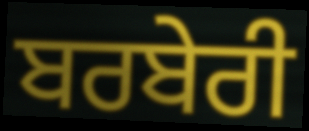
ਬਰਬੇਰੀ